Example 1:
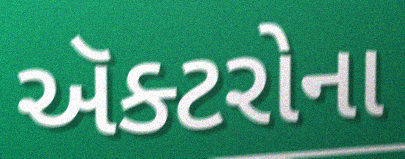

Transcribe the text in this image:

ઍક્ટરોના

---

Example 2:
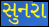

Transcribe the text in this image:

સુનરા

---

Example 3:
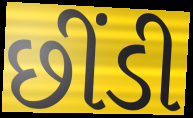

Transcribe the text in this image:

છીંડી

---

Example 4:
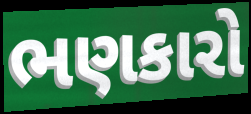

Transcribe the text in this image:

ભણકારો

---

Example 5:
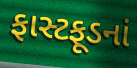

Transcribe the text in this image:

ફાસ્ટફૂડનાં